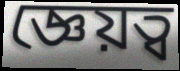
জ্ঞেয়ত্ব